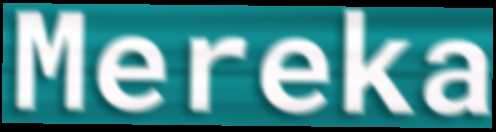
Mereka